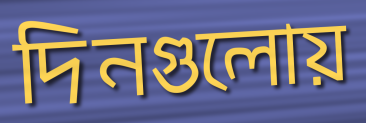
দিনগুলোয়